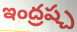
ఇంద్రష్చ